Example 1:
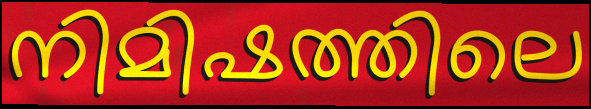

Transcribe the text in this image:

നിമിഷത്തിലെ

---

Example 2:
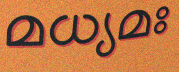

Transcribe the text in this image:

മധ്യമഃ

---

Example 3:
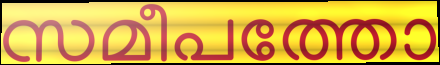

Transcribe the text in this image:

സമീപത്തോ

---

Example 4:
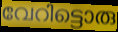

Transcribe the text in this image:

വേറിട്ടൊരു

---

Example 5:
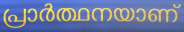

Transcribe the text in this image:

പ്രാർത്ഥനയാണ്